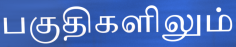
பகுதிகளிலும்